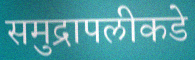
समुद्रापलीकडे